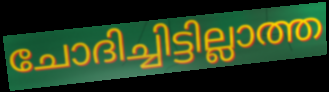
ചോദിച്ചിട്ടില്ലാത്ത